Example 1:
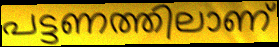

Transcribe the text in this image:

പട്ടണത്തിലാണ്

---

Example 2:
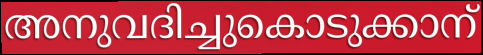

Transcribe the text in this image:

അനുവദിച്ചുകൊടുക്കാന്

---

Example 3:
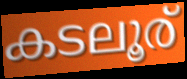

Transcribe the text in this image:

കടലൂര്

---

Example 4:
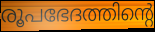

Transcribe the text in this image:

രൂപഭേദത്തിന്റെ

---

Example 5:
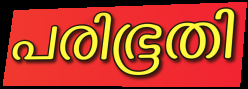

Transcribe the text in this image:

പരിഭൂതി